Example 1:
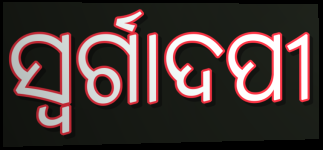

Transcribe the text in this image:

ସ୍ବର୍ଗାଦପୀ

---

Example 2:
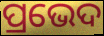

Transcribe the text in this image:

ପ୍ରଭେଦ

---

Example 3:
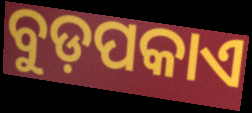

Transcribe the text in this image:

ବୁଡ଼ପକାଏ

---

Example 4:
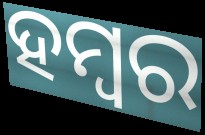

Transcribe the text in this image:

ହମ୍ବର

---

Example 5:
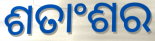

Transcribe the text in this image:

ଶତାଂଶର